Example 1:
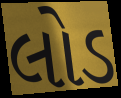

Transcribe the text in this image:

લોડ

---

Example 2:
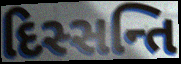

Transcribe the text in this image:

દિસ્સન્તિ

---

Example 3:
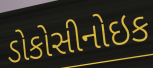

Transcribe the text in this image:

ડોકોસીનોઇક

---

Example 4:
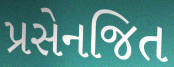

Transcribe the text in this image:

પ્રસેનજિત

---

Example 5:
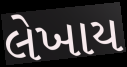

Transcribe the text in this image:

લેખાય